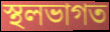
স্থলভাগত